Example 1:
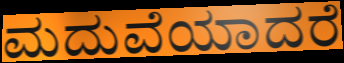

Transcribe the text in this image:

ಮದುವೆಯಾದರೆ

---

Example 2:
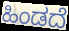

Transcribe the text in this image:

ಹಿಂಡದೆ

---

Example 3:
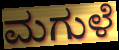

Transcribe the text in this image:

ಮಗುಳೆ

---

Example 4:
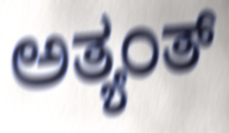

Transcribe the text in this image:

ಅತ್ಯಂತ್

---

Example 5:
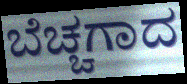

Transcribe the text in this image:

ಬೆಚ್ಚಗಾದ